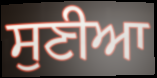
ਸੁਣੀਆ